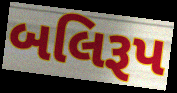
બલિરૂપ